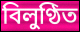
বিলুণ্ঠিত